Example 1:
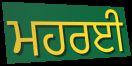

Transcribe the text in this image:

ਮਹਰਈ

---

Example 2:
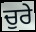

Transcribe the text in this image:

ਚੁਰੇ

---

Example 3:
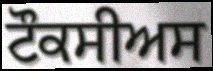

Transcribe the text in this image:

ਟੌਕਸੀਅਸ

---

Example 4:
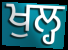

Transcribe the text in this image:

ਖੁਲ੍ਹ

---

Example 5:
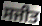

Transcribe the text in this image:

ਸਜੀਤ